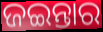
ଜଇନ୍ତାର